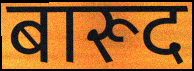
बारूद